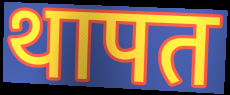
थापत